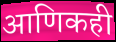
आणिकही